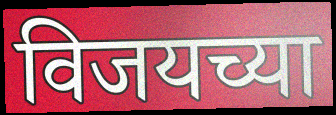
विजयच्या